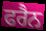
ਫਰੈਨ